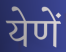
येणें